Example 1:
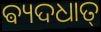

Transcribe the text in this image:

ଵ୍ୟଦଧାତ୍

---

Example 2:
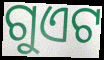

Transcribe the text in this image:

ଗୁଏଟ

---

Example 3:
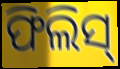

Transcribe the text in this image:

ଫିଲିସ୍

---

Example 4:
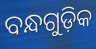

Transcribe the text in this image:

ବନ୍ଧଗୁଡ଼ିକ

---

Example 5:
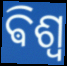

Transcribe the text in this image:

ଵିଶ୍ୱ